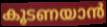
കൂടണയാൻ